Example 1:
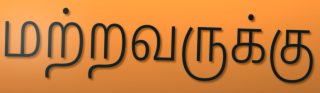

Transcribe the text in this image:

மற்றவருக்கு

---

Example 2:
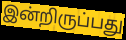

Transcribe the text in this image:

இன்றிருப்பது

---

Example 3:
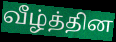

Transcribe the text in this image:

வீழ்த்தின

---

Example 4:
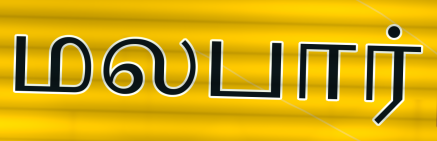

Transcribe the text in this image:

மலபார்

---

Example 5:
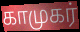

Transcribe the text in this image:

காமுகர்